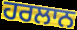
ਹਰਲਾਨ